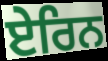
ਏਰਿਨ